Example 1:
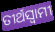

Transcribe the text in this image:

ତୀର୍ଥସ୍ୱାମୀ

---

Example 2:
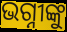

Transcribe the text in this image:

ଭଗ୍ନୀଙ୍କୁ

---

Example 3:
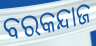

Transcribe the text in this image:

ବରକନ୍ଦାଜ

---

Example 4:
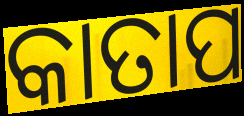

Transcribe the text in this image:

କାତାପ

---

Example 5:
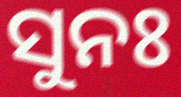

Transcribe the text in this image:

ସୁନଃ